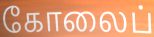
கோலைப்